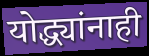
योद्ध्यांनाही